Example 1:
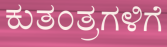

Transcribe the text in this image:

ಕುತಂತ್ರಗಳಿಗೆ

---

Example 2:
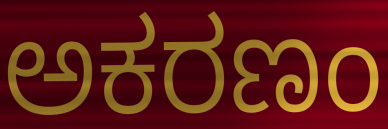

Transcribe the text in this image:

ಅಕರಣಂ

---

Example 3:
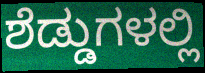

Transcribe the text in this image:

ಶೆಡ್ಡುಗಳಲ್ಲಿ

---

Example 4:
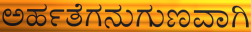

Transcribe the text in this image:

ಅರ್ಹತೆಗನುಗುಣವಾಗಿ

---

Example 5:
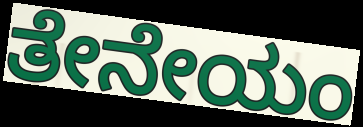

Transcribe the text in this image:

ತೇನೇಯಂ